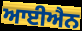
ਆਈਐਨ